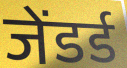
जेंडर्ड